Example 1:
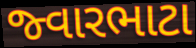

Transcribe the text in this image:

જ્વારભાટા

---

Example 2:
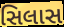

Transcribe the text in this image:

સિલાસ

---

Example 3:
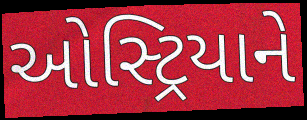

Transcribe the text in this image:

ઓસ્ટ્રિયાને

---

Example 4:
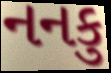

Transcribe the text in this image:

નનકુ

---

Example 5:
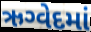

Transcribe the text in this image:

ઋગ્વેદમાં